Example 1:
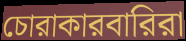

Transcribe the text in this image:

চোরাকারবারিরা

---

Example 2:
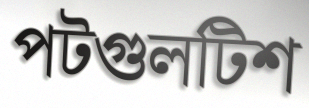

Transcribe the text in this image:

পটগুলটিশ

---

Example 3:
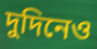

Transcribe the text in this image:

দুদিনেও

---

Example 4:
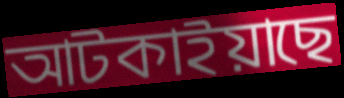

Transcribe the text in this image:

আটকাইয়াছে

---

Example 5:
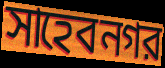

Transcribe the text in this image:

সাহেবনগর